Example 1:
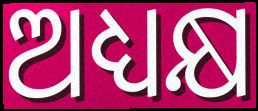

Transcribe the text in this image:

ଅଧ୍ୟକ୍ଷ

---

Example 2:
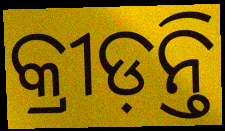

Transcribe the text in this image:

କ୍ରୀଡ଼ନ୍ତି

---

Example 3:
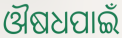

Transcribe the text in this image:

ଔଷଧପାଇଁ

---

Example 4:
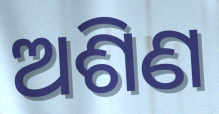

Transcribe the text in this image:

ଅଶିଣ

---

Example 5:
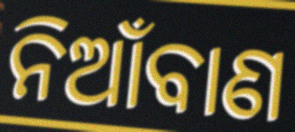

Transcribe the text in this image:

ନିଆଁବାଣ